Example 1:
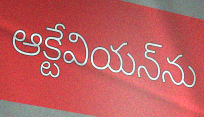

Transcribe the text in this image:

ఆక్టేవియన్‌ను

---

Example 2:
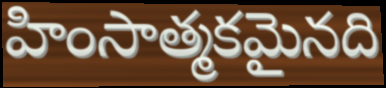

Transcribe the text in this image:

హింసాత్మకమైనది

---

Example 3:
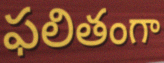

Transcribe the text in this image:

ఫలితంగా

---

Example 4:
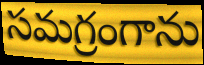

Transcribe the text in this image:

సమగ్రంగాను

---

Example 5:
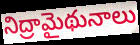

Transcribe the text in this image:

నిద్రామైథునాలు